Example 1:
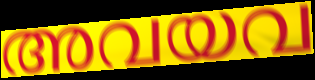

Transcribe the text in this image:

അവയവ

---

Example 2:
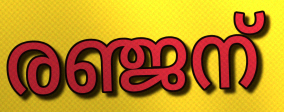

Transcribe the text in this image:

രഞ്ജന്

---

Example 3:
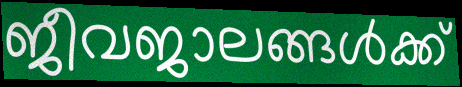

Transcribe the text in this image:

ജീവജാലങ്ങൾക്ക്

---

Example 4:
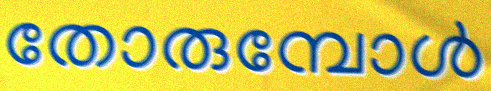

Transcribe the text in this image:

തോരുമ്പോൾ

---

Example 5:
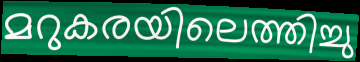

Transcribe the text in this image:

മറുകരയിലെത്തിച്ചു